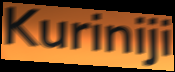
Kuriniji